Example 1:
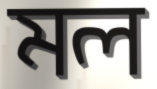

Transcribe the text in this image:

মল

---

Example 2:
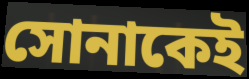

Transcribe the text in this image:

সোনাকেই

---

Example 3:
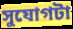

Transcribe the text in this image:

সুযোগটা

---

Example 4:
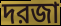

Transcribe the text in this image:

দরজা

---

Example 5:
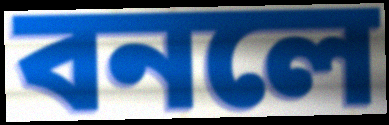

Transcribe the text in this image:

বনলে